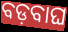
ବଡ଼ବାଘ